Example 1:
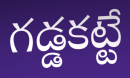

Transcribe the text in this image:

గడ్డకట్టే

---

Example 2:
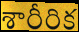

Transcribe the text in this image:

శారీరిక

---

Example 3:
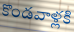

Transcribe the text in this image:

కొండవాళ్లకి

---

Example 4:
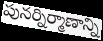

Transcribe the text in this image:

పునర్నిర్మాణాన్ని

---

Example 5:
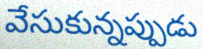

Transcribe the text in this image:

వేసుకున్నప్పుడు